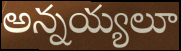
అన్నయ్యలూ